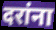
दरांना